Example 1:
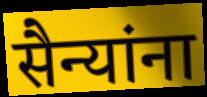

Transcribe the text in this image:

सैन्यांना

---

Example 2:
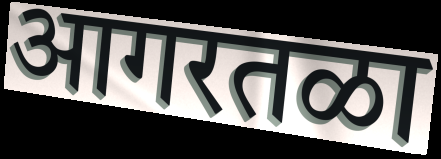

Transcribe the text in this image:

आगरतळा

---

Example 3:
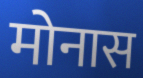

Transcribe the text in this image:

मोनास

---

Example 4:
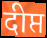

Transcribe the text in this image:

दीप्त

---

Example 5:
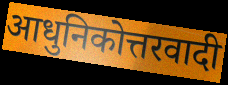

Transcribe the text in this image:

आधुनिकोत्तरवादी